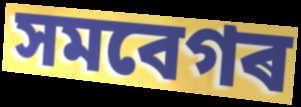
সমবেগৰ